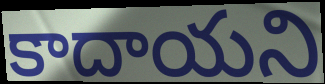
కాదాయని